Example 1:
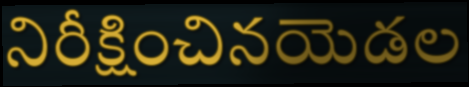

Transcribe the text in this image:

నిరీక్షించినయెడల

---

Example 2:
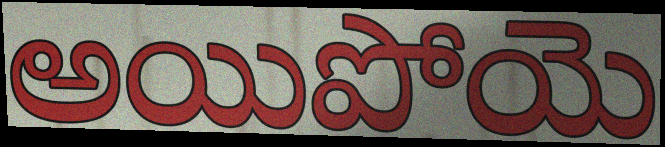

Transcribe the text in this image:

అయిపోయె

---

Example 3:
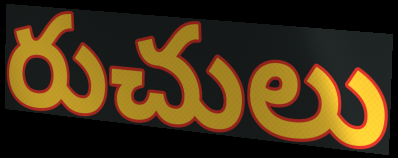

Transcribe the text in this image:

రుచులు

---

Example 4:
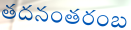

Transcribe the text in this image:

తదనంతరంబ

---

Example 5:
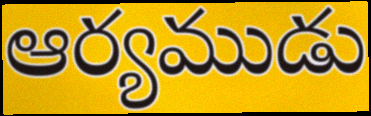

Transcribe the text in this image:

ఆర్యముడు